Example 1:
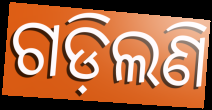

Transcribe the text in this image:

ଗଡ଼ିଲଣି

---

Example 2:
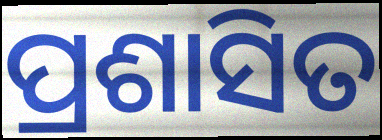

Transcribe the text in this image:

ପ୍ରଶାସିତ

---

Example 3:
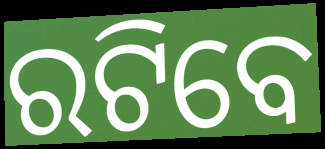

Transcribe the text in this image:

ରଟିବେ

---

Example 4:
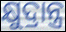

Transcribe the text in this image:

କ୍ଷୁଦ୍ରାନ୍ତ୍ର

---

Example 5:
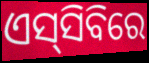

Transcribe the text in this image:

ଏସ୍‌ସିବିରେ